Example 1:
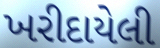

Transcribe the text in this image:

ખરીદાયેલી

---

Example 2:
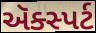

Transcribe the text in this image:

ઍક્સ્પર્ટ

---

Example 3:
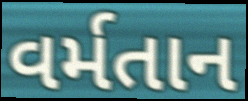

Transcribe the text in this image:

વર્મતાન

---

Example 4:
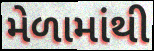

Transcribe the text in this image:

મેળામાંથી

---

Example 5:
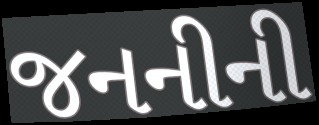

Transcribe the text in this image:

જનનીની